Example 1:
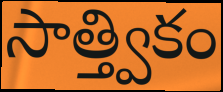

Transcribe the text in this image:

సాత్త్వికం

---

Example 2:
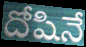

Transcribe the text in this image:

దోషినే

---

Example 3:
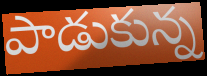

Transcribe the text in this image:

పాడుకున్న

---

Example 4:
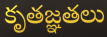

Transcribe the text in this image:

కృతజ్ఞతలు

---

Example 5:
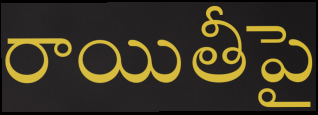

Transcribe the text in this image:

రాయితీపై